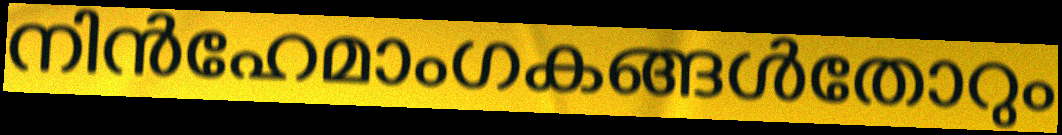
നിൻഹേമാംഗകങ്ങൾതോറും